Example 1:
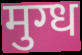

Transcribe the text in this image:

मुग्ध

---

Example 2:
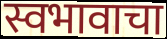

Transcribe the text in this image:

स्वभावाचा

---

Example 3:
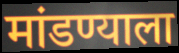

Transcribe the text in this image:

मांडण्याला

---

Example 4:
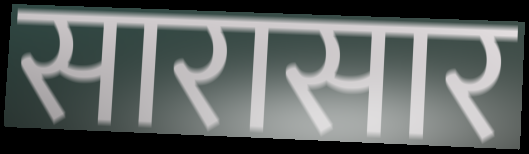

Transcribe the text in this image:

सारासार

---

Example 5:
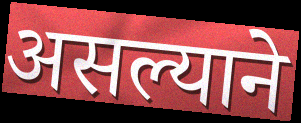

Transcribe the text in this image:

असल्याने